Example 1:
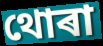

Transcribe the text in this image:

থোৰা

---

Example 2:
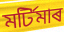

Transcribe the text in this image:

মৰ্টিমাৰ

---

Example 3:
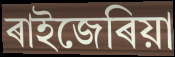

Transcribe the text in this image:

ৰাইজেৰিয়া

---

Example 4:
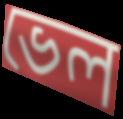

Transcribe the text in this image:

ভেল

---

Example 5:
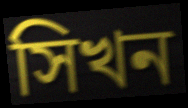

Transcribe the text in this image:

সিখন